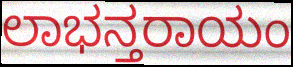
ಲಾಭನ್ತರಾಯಂ